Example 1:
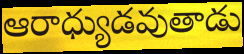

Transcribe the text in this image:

ఆరాధ్యుడవుతాడు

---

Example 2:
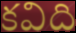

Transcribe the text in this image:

కవిది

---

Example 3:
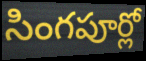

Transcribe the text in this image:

సింగపూర్లో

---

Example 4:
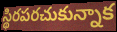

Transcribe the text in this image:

స్థిరపరచుకున్నాక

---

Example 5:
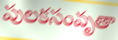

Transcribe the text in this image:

పులకసంవృతా